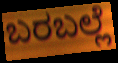
ಬರಬಲ್ಲೆ